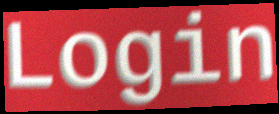
Login